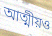
আত্মীয়ও